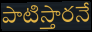
పాటిస్తారనే